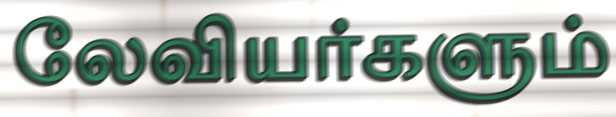
லேவியர்களும்